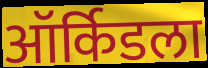
ऑर्किडला